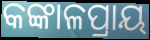
କଙ୍କାଳପ୍ରାୟ